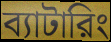
ব্যাটারিং